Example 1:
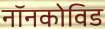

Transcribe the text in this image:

नॉनकोविड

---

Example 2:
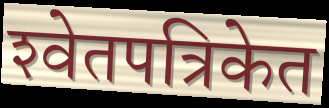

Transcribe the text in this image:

श्वेतपत्रिकेत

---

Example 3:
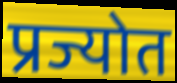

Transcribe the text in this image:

प्रज्योत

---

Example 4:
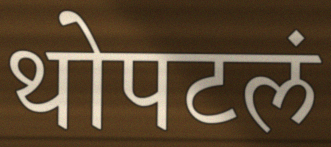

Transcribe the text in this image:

थोपटलं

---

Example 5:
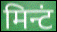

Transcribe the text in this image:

मिन्टं